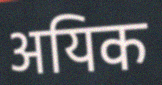
अयिक